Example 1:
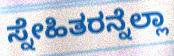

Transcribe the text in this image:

ಸ್ನೇಹಿತರನ್ನೆಲ್ಲಾ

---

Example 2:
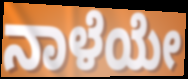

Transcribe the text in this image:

ನಾಳೆಯೇ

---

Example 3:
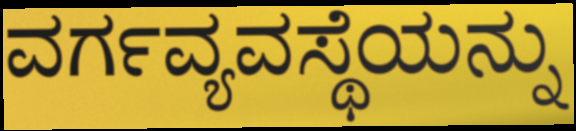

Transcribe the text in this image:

ವರ್ಗವ್ಯವಸ್ಥೆಯನ್ನು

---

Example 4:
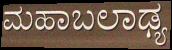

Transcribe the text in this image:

ಮಹಾಬಲಾಢ್ಯ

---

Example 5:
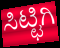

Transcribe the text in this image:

ಸಿಟ್ಟಿಗಿ